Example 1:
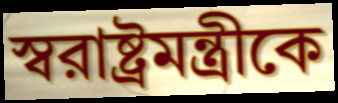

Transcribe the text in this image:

স্বরাষ্ট্রমন্ত্রীকে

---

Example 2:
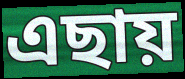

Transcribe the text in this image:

এছায়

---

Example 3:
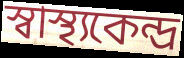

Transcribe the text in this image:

স্বাস্থ্যকেন্দ্র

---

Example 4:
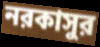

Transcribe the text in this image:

নরকাসুর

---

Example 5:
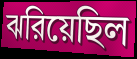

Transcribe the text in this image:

ঝরিয়েছিল